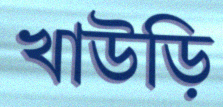
খাউড়ি